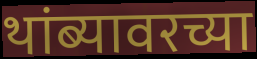
थांब्यावरच्या